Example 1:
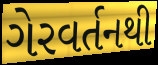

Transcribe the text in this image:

ગેરવર્તનથી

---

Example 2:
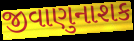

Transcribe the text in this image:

જીવાણુનાશક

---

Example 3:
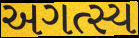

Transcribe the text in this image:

અગત્સ્ય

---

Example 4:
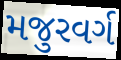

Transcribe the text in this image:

મજુરવર્ગ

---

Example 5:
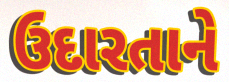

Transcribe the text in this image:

ઉદારતાને